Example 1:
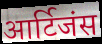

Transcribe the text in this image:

आर्टिजंस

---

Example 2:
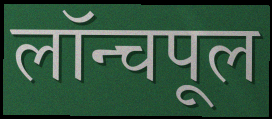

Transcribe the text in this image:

लॉन्चपूल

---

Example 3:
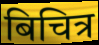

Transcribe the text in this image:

बिचित्र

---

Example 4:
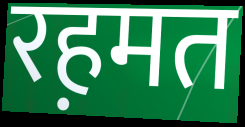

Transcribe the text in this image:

रह़मत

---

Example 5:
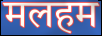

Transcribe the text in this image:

मलहम